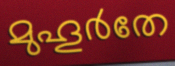
മുഹൂർതേ